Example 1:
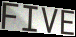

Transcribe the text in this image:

FIVE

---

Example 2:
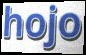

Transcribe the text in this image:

hojo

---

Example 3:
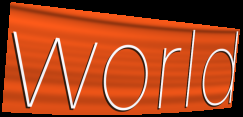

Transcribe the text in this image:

world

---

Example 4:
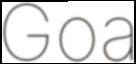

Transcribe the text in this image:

Goa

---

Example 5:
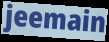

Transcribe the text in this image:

jeemain